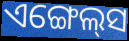
ଏଙ୍ଗେଲ୍‌ସ